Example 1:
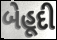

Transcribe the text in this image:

બેહૂદી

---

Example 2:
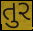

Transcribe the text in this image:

તુર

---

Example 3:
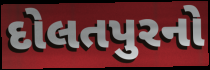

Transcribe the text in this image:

દોલતપુરનો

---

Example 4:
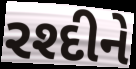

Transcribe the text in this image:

રશ્દીને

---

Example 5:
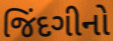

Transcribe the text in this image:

જિંદગીનો